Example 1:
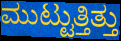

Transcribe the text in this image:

ಮುಟ್ಟುತ್ತಿತ್ತು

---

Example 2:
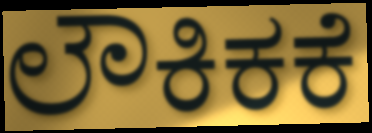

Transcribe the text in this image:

ಲೌಕಿಕಕೆ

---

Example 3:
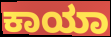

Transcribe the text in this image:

ಕಾಯಾ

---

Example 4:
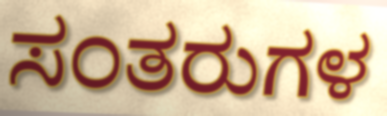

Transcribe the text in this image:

ಸಂತರುಗಳ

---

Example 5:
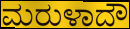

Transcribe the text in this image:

ಮರುಳಾದೌ